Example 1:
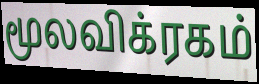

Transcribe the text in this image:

மூலவிக்ரகம்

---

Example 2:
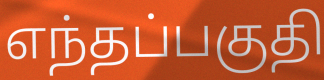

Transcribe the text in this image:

எந்தப்பகுதி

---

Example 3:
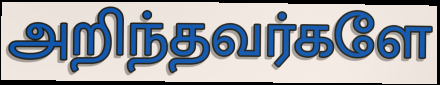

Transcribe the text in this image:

அறிந்தவர்களே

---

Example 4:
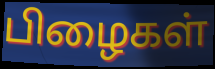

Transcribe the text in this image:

பிழைகள்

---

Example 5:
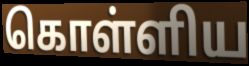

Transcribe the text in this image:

கொள்ளிய